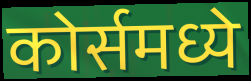
कोर्समध्ये